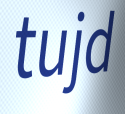
tujd